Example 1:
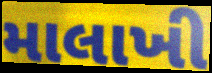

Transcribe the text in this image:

માલાખી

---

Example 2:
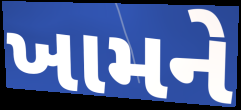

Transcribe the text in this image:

ખામને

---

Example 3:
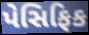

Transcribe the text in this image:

પેસિફિક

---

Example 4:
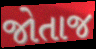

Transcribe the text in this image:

જોતાજ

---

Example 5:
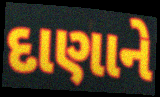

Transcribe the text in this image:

દાણાને